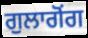
ਗੁਲਾਗੋਂਗ